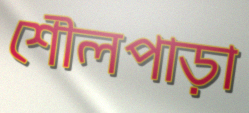
শৌলপাড়া